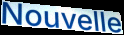
Nouvelle